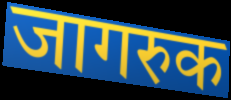
जागरुक